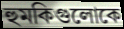
হুমকিগুলোকে